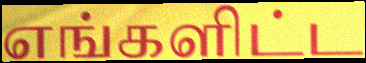
எங்களிட்ட